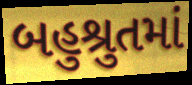
બહુશ્રુતમાં